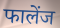
फालेंज